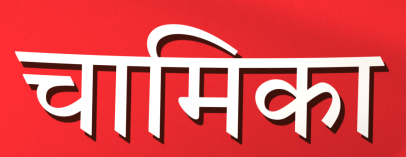
चामिका